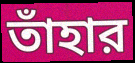
তাঁহার